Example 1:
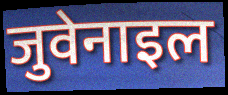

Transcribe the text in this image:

जुवेनाइल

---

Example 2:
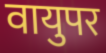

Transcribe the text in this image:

वायुपर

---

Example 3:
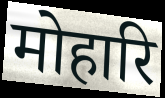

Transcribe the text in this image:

मोहारि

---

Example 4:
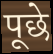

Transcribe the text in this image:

पूछे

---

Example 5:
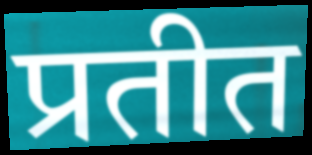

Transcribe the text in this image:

प्रतीत